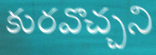
కురవొచ్చని